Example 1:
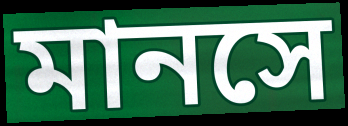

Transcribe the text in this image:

মানসে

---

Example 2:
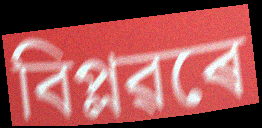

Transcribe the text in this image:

বিপ্লৱৰে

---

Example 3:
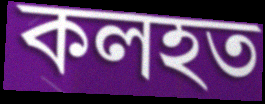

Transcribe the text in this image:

কলহত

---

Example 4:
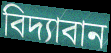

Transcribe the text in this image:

বিদ্যাবান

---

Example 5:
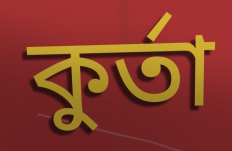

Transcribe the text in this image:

কুৰ্তা